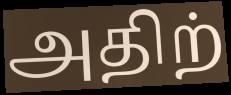
அதிற்